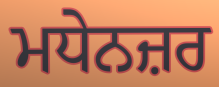
ਮਧੇਨਜ਼ਰ